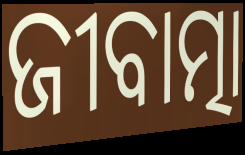
ଜୀବାତ୍ମା